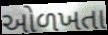
ઓળખતા